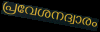
പ്രവേശനദ്വാരം